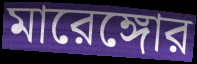
মারেঙ্গোর